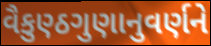
વૈકુણ્ઠગુણાનુવર્ણને